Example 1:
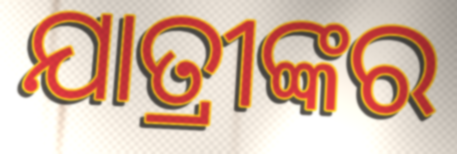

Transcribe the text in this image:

ଯାତ୍ରୀଙ୍କର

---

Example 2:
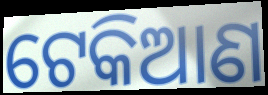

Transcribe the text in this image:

ଟେକିଆଣ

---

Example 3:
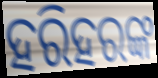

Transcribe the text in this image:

ହରିହରଙ୍କ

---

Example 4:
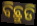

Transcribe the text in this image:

ବିଛୁଡି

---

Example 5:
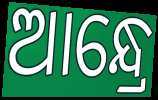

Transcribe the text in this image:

ଆନ୍ଧ୍ରେ